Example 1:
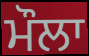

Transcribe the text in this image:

ਮੌਲਾ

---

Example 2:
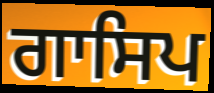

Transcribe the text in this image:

ਗਾਸਿਪ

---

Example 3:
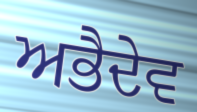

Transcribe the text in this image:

ਅਭੈਦੇਵ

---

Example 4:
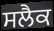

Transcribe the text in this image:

ਸਲੈਕ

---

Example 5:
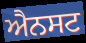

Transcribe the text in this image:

ਐਨਸਟ